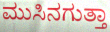
ಮುಸಿನಗುತ್ತಾ